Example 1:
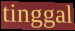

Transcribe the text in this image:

tinggal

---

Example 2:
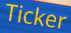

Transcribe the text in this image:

Ticker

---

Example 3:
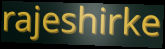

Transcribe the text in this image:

rajeshirke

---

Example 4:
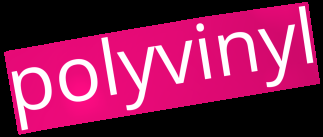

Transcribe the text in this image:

polyvinyl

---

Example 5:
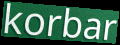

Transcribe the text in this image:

korbar